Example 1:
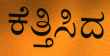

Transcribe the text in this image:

ಕೆತ್ತಿಸಿದ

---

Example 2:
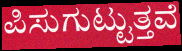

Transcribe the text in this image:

ಪಿಸುಗುಟ್ಟುತ್ತವೆ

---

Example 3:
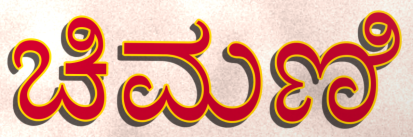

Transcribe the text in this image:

ಚಿಮಣಿ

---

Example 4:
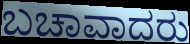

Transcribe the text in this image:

ಬಚಾವಾದರು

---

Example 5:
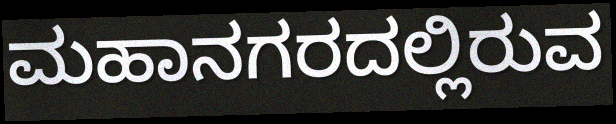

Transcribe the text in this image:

ಮಹಾನಗರದಲ್ಲಿರುವ